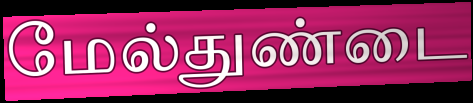
மேல்துண்டை